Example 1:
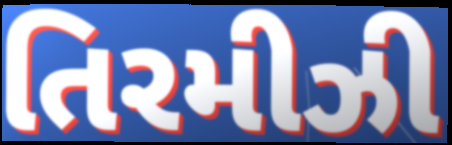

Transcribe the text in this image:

તિરમીઝી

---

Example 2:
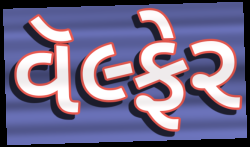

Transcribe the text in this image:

વૅલ્ફેર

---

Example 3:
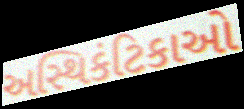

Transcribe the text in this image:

અસ્થિકંટિકાઓ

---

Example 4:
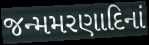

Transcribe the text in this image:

જન્મમરણાદિનાં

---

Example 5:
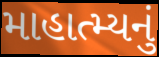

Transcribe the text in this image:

માહાત્મ્યનું